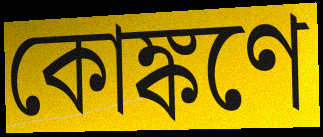
কোঙ্কণে